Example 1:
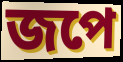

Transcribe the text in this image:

জপে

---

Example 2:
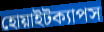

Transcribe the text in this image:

হোয়াইটক্যাপস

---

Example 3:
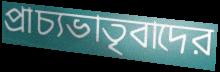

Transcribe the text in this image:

প্রাচ্যভাতৃবাদের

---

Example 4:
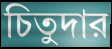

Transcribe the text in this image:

চিতুদার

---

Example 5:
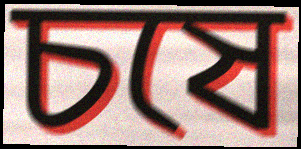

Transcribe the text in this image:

চষে